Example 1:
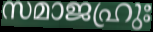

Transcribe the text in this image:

സമാജഹ്രുഃ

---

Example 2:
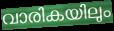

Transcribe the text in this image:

വാരികയിലും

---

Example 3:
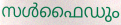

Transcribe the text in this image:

സൾഫൈഡും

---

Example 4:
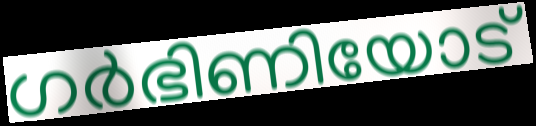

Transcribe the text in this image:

ഗർഭിണിയോട്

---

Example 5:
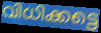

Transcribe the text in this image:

വിധിക്കട്ടെ